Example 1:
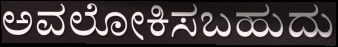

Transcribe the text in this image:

ಅವಲೋಕಿಸಬಹುದು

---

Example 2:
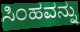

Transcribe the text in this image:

ಸಿಂಹವನ್ನು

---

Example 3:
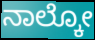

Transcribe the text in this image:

ನಾಲ್ಕೋ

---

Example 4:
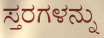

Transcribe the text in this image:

ಸ್ತರಗಳನ್ನು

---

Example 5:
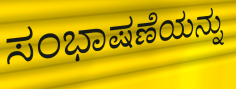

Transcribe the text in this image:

ಸಂಭಾಷಣೆಯನ್ನು